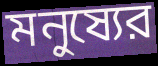
মনুষ্যের